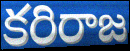
కరిరాజ